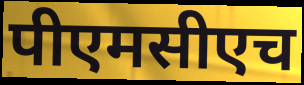
पीएमसीएच